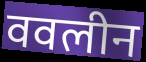
ववलीन